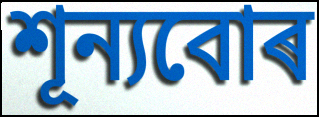
শূন্যবোৰ